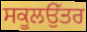
ਸਕੂਲਉੱਤਰ